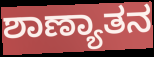
ಶಾಣ್ಯಾತನ